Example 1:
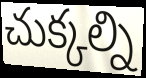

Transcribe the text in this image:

చుక్కల్ని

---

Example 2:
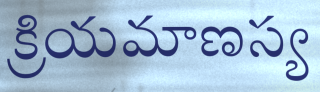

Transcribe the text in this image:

క్రియమాణస్య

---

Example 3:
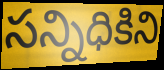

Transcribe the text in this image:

సన్నిధికిని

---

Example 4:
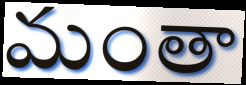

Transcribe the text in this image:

మంతా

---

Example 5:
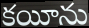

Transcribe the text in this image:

కయీను